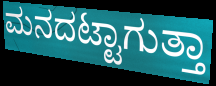
ಮನದಟ್ಟಾಗುತ್ತಾ